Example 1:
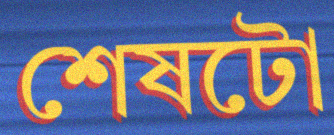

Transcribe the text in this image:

শেষটো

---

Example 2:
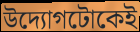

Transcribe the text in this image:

উদ্যোগটোকেই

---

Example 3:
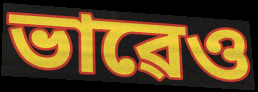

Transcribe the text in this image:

ভাৱেও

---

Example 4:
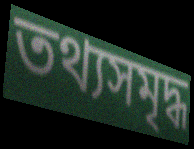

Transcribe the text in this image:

তথ্যসমৃদ্ধ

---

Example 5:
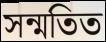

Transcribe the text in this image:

সন্মতিত